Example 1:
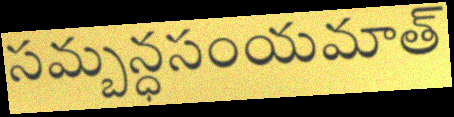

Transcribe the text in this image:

సమ్బన్ధసంయమాత్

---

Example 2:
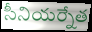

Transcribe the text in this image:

సీనియర్నేత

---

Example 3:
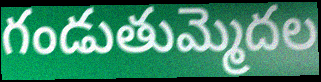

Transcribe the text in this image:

గండుతుమ్మెదల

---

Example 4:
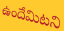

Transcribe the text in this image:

ఉందేమిటని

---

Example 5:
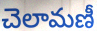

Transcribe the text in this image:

చెలామణీ